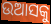
ଉଆସକୁ